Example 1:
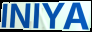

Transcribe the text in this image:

INIYA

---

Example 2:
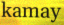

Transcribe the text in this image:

kamay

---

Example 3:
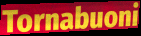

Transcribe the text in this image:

Tornabuoni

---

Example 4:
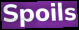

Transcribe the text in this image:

Spoils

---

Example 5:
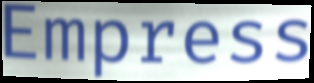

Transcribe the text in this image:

Empress